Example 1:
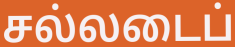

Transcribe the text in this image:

சல்லடைப்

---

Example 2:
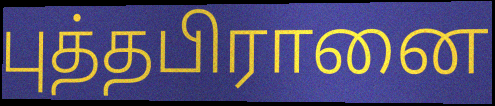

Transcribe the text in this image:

புத்தபிரானை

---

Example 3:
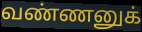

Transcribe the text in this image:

வண்ணனுக்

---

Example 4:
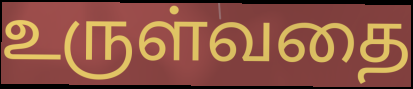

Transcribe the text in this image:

உருள்வதை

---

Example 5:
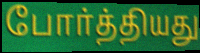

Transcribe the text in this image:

போர்த்தியது